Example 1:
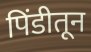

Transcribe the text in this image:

पिंडीतून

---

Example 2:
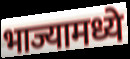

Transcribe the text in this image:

भाज्यामध्ये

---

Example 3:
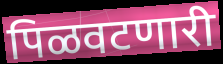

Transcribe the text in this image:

पिळवटणारी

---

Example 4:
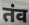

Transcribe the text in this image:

तंव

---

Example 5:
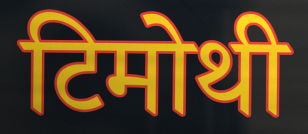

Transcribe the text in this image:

टिमोथी